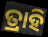
ତ୍ରାହି